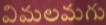
విమలమగు